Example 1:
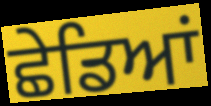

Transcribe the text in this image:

ਛੇਡਿਆਂ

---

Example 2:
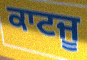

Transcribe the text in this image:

ਕਾਟਜੂ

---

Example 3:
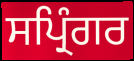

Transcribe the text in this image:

ਸਪ੍ਰਿੰਗਰ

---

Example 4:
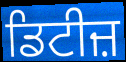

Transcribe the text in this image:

ਡਿਟੀਜ਼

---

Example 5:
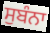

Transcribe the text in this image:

ਸੁਬੰਨਾ